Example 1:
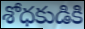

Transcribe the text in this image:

శోధకుడికి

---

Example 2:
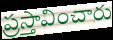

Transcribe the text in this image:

ప్రస్తావించారు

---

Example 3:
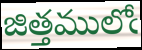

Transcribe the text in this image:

జిత్తములోఁ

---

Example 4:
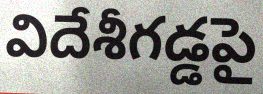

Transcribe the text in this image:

విదేశీగడ్డపై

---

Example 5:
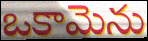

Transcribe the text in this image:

ఒకామెను